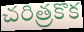
చరిత్రకొక